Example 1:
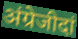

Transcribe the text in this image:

अंग्रेजीदां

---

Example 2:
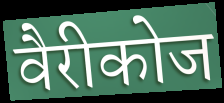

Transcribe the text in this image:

वैरीकोज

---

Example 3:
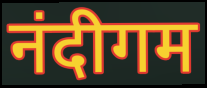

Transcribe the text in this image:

नंदीगम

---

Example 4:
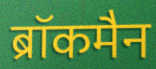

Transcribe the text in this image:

ब्रॉकमैन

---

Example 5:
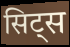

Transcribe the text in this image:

सिट्स